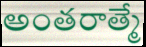
అంతరాత్మే